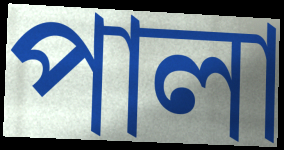
পালা